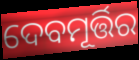
ଦେବମୂର୍ତ୍ତିର